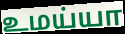
உமய்யா